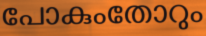
പോകുംതോറും